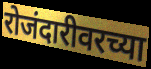
रोजंदारीवरच्या